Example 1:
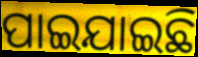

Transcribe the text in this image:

ପାଇଯାଇଛି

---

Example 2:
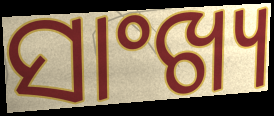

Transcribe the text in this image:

ସାଂଖ୍ଯ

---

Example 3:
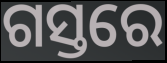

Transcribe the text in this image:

ଗସ୍ତରେ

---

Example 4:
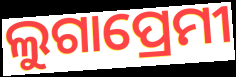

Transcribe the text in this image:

ଲୁଗାପ୍ରେମୀ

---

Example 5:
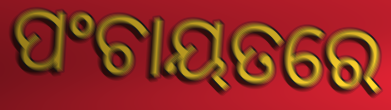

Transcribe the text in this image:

ପଂଚାୟତରେ